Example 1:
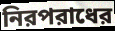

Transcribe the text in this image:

নিরপরাধের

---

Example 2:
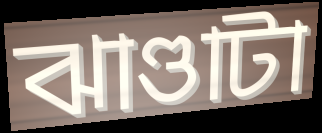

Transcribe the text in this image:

ঝাণ্ডাটা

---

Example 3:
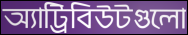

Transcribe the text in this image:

অ্যাট্রিবিউটগুলো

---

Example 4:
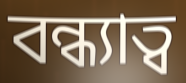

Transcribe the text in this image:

বন্ধ্যাত্ব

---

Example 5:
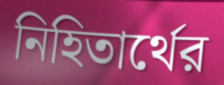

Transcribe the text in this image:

নিহিতার্থের